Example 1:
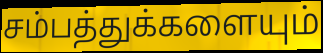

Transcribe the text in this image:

சம்பத்துக்களையும்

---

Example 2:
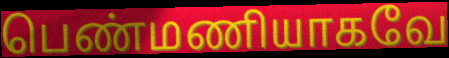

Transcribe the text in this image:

பெண்மணியாகவே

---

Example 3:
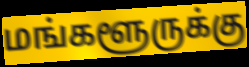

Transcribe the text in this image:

மங்களூருக்கு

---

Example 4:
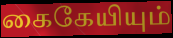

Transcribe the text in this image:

கைகேயியும்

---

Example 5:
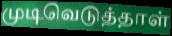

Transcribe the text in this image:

முடிவெடுத்தாள்